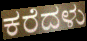
ಕರೆದಳು